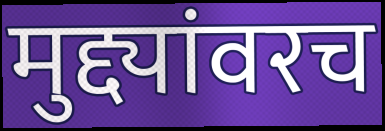
मुद्द्यांवरच